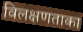
विलक्षणताका